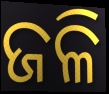
ଜଳି